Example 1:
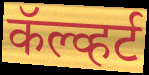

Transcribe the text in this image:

कॅल्व्हर्ट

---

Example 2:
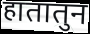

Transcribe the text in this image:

हातातुन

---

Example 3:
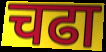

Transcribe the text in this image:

चढा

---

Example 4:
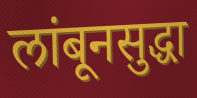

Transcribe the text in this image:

लांबूनसुद्धा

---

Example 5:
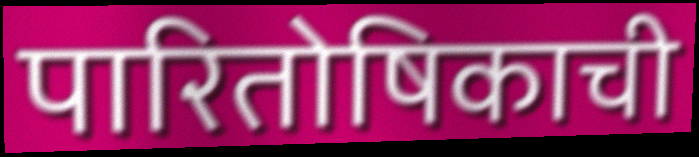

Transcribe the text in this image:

पारितोषिकाची